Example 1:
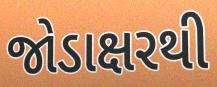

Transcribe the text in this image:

જોડાક્ષરથી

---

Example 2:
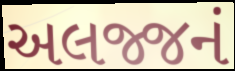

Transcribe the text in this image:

અલજ્જનં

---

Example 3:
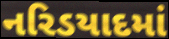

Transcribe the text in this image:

નરિડયાદમાં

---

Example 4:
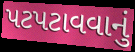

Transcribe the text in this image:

પટપટાવવાનું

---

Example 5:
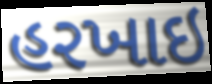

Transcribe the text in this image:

હરખાઇ